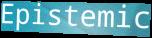
Epistemic